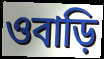
ওবাড়ি